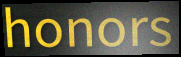
honors